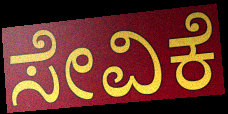
ಸೇವಿಕೆ